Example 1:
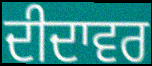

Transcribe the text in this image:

ਦੀਦਾਵਰ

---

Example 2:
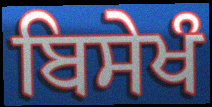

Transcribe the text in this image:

ਬਿਸੇਖੰ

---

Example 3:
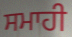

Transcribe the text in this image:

ਸਮਾਹੀ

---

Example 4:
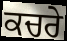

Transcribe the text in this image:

ਕਚਰੇ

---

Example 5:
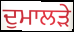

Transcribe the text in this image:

ਦੁਮਾਲੜੇ